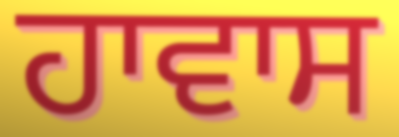
ਹਾਵਾਸ